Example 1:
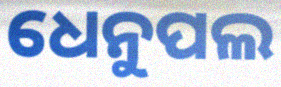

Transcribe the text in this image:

ଧେନୁପଲ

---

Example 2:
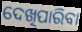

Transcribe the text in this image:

ଦେଖିପାରିବା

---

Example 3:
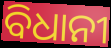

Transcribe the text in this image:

ବିଧାନୀ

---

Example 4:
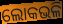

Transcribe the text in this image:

ଲୋକଭଳି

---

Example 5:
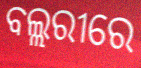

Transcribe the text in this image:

ବଲ୍ଲରୀରେ